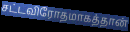
சட்டவிரோதமாகத்தான்